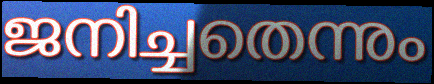
ജനിച്ചതെന്നും